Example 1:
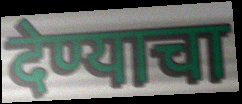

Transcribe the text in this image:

देण्याचा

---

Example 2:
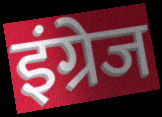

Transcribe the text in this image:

इंग्रेज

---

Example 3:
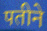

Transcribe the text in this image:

पतीने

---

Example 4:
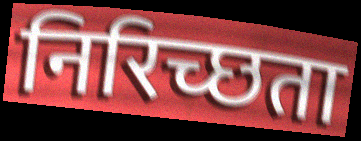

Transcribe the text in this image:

निरिच्छता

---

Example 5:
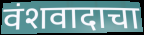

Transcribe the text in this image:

वंशवादाचा